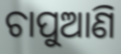
ଚାପୁଆଣି